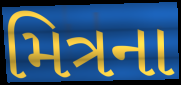
મિત્રના